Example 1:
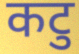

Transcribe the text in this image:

कटु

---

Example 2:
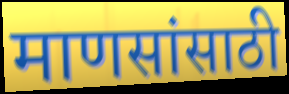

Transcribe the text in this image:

माणसांसाठी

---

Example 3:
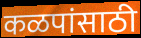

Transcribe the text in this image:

कळपांसाठी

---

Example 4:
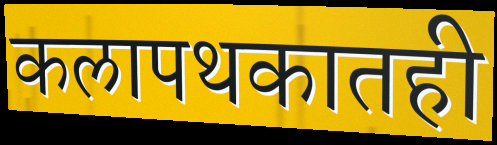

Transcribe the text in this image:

कलापथकातही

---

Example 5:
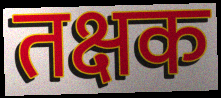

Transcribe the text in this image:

तक्षक